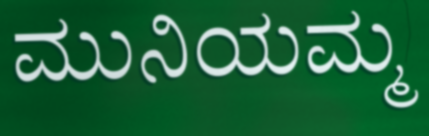
ಮುನಿಯಮ್ಮ